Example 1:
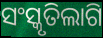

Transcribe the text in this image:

ସଂସ୍କୃତିଲାଗି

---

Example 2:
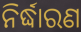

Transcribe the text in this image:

ନିର୍ଦ୍ଧାରଣ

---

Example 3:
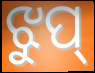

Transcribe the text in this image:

ଝୁପ୍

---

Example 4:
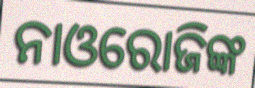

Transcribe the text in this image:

ନାଓରୋଜିଙ୍କ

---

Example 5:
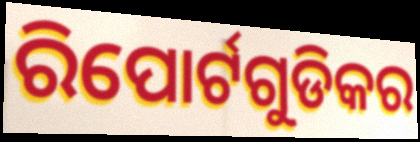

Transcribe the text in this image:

ରିପୋର୍ଟଗୁଡିକର